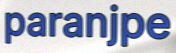
paranjpe